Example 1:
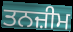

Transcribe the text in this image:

ਤਨਜ਼ੀਮ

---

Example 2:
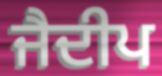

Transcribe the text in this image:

ਜੈਦੀਪ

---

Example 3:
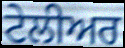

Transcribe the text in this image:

ਟੇਲੀਅਰ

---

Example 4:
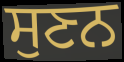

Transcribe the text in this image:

ਸੁਣਨ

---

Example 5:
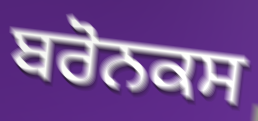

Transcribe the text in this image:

ਬਰੋਨਕਸ